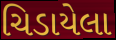
ચિડાયેલા